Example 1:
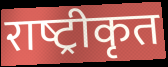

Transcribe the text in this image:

राष्ट्रीकृत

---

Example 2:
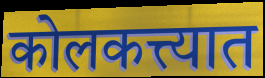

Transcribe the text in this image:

कोलकत्त्यात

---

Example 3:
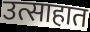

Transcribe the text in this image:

उत्साहात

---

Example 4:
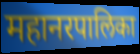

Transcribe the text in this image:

महानरपालिका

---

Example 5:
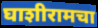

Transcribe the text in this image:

घाशीरामचा